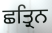
ਛਤ੍ਰਿਨ